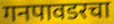
गनपावडरचा